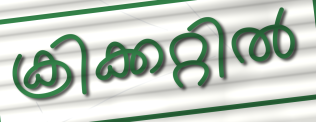
ക്രിക്കറ്റിൽ